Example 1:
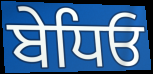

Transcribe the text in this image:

ਬੇਧਿਓ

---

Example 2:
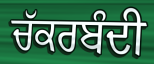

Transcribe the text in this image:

ਚੱਕਰਬੰਦੀ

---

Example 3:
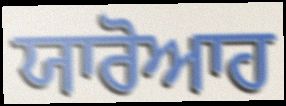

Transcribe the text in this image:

ਯਾਰੋਆਹ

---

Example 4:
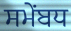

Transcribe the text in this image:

ਸਮੇਂਬਧ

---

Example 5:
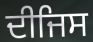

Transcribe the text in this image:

ਦੀਜਿਸ